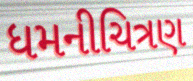
ધમનીચિત્રણ